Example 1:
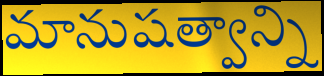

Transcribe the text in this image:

మానుషత్వాన్ని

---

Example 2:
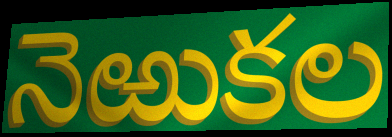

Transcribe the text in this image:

నెఱుకల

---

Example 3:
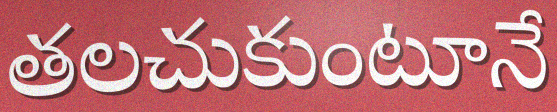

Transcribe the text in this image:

తలచుకుంటూనే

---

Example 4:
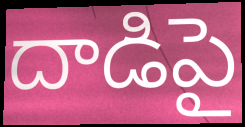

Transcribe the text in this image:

దాడిపై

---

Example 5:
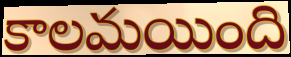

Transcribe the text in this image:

కాలమయింది